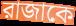
রাজাকে